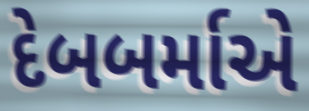
દેબબર્માએ